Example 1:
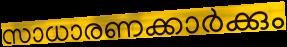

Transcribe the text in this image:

സാധാരണക്കാർക്കും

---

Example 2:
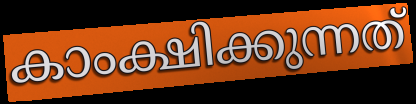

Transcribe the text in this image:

കാംക്ഷിക്കുന്നത്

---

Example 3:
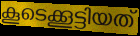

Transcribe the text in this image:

കൂടെക്കൂട്ടിയത്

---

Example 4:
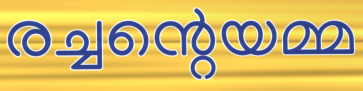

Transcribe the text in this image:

രച്ചന്റെയമ്മ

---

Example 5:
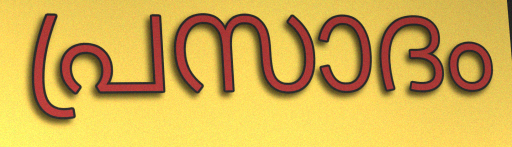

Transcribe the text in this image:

പ്രസാദം